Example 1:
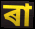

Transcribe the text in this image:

ৰা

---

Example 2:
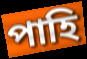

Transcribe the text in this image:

পাহি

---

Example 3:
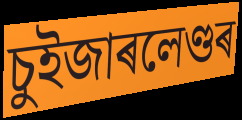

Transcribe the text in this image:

চুইজাৰলেণ্ডৰ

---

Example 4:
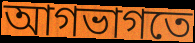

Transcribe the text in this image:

আগভাগতে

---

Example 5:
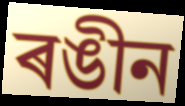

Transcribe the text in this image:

ৰঙীন